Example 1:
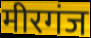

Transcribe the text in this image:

मीरगंज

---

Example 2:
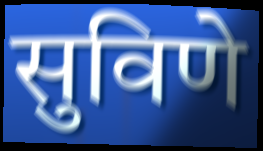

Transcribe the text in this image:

सुविणे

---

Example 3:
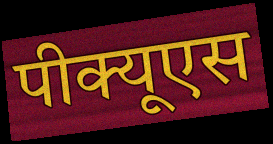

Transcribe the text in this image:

पीक्यूएस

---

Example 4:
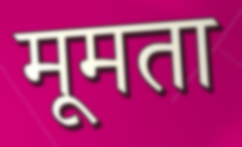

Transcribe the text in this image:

मूमता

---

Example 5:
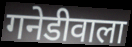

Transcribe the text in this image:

गनेडीवाला